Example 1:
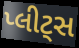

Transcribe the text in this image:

પ્લીટ્સ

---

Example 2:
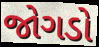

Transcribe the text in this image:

જોગડો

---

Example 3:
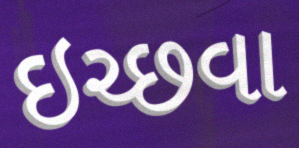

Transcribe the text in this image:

ઇચ્છવા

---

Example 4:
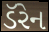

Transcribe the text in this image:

ડૅરેન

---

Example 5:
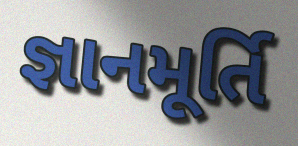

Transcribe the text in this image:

જ્ઞાનમૂર્તિ